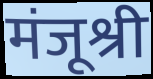
मंजूश्री